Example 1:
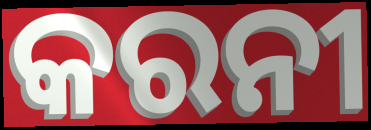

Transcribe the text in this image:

କରନୀ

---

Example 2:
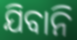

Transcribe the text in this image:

ଯିବାନି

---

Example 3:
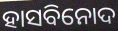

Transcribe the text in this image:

ହାସବିନୋଦ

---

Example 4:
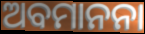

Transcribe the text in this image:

ଅବମାନନା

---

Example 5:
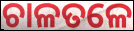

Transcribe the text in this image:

ଚାଳତଳେ